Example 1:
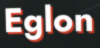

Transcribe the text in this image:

Eglon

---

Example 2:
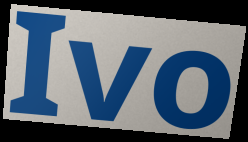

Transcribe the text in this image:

Ivo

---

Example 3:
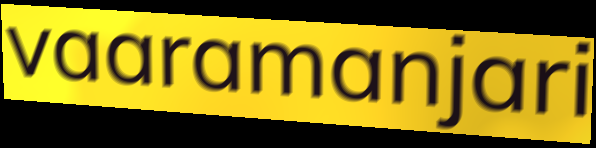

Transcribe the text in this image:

vaaramanjari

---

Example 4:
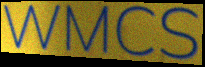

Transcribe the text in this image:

WMCS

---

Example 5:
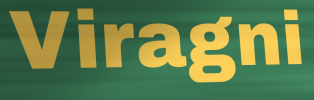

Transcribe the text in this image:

Viragni